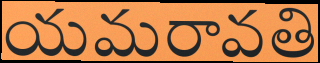
యమరావతి